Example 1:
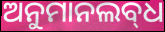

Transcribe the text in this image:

ଅନୁମାନଲବ୍‌ଧ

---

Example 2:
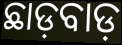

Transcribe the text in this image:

ଛାଡ଼ବାଡ଼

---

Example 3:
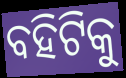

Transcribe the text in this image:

ବହିଟିକୁ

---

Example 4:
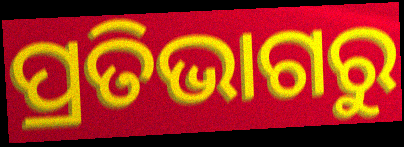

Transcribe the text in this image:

ପ୍ରତିଭାଗରୁ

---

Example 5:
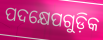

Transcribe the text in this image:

ପଦକ୍ଷେପଗୁଡ଼ିକ